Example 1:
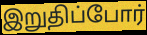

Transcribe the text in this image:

இறுதிப்போர்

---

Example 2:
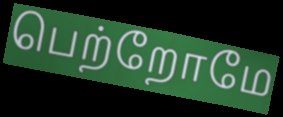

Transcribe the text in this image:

பெற்றோமே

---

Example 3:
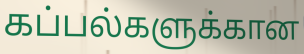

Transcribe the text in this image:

கப்பல்களுக்கான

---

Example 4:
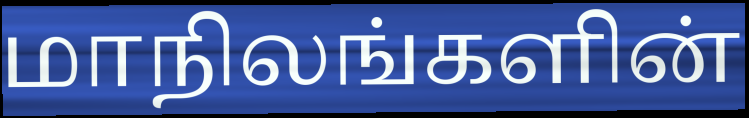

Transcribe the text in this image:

மாநிலங்களின்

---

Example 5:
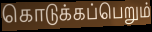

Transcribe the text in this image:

கொடுக்கப்பெறும்